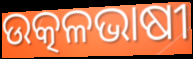
ଉତ୍କଳଭାଷୀ